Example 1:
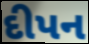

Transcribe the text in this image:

દીપન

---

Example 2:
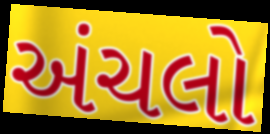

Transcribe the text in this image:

અંચલો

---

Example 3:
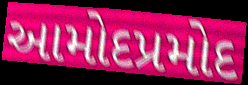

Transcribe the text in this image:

આમોદપ્રમોદ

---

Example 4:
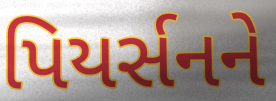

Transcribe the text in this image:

પિયર્સનને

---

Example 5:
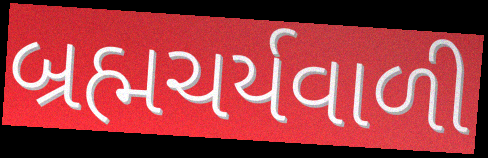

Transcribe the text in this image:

બ્રહ્મચર્યવાળી